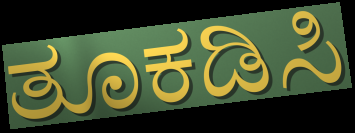
ತೂಕಡಿಸಿ